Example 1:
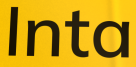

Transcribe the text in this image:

Inta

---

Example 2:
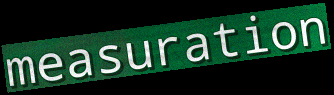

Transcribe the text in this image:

measuration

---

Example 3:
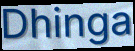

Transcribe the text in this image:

Dhinga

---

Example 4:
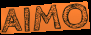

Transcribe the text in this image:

AIMO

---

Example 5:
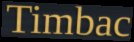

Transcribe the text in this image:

Timbac